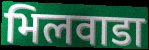
भिलवाडा